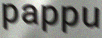
pappu